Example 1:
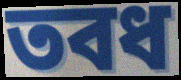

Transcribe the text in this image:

তবধ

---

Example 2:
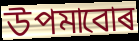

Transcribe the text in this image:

উপমাবোৰ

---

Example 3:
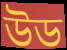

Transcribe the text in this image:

উড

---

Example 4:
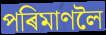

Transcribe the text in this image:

পৰিমাণলৈ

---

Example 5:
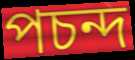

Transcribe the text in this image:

পচন্দ